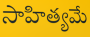
సాహిత్యమే